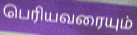
பெரியவரையும்